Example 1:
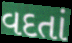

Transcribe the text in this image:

વદતાં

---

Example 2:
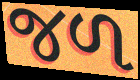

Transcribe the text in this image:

જળ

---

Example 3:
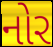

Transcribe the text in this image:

નોર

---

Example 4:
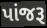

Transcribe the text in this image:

પાંજરૂ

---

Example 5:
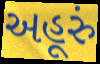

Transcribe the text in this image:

અહૂરું